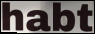
habt